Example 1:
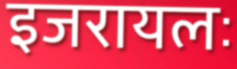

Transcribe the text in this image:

इजरायलः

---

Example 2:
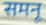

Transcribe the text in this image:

समनू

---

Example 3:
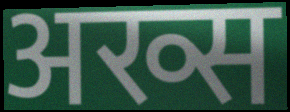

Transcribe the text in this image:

अख्स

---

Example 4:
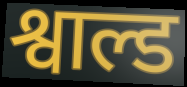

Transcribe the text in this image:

श्वाल्ड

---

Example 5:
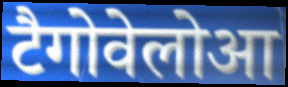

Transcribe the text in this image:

टैगोवेलोआ